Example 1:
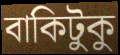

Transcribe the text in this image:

বাকিটুকু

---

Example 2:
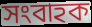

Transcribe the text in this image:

সংবাহক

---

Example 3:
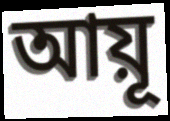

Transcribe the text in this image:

আয়ূ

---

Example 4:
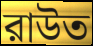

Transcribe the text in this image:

রাউত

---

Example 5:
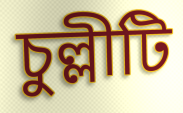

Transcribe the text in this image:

চুল্লীটি